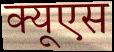
क्यूएस